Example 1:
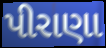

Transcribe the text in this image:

પીરાણા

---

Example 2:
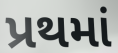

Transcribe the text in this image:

પ્રથમાં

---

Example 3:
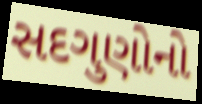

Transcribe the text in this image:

સદગુણોનો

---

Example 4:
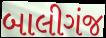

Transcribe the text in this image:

બાલીગંજ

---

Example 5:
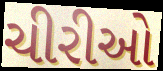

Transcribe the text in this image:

ચીરીઓ